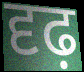
दृढ़